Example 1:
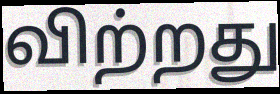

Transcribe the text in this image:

விற்றது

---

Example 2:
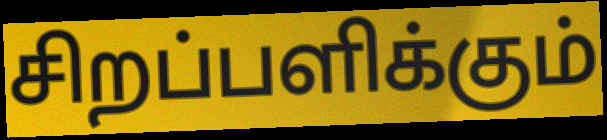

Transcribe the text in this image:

சிறப்பளிக்கும்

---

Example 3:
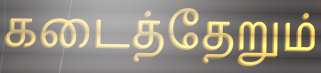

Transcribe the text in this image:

கடைத்தேறும்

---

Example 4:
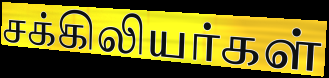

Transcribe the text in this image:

சக்கிலியர்கள்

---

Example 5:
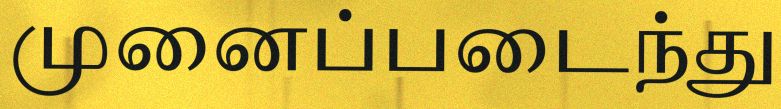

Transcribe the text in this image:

முனைப்படைந்து